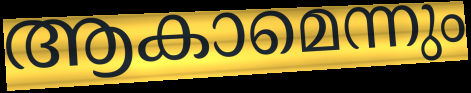
ആകാമെന്നും